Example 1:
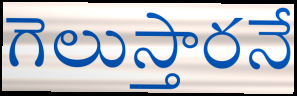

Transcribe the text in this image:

గెలుస్తారనే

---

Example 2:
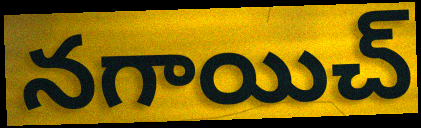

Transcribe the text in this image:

నగాయిచ్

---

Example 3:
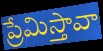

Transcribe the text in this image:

ప్రేమిస్తావా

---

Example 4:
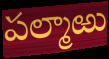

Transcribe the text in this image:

పల్మాఱు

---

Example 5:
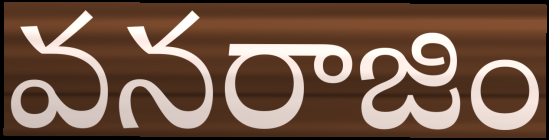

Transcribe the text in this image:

వనరాజిం